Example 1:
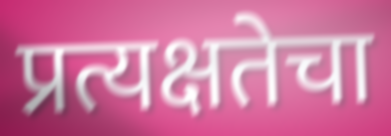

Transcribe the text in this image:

प्रत्यक्षतेचा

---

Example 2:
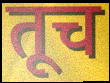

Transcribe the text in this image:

तूच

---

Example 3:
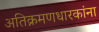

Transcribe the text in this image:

अतिक्रमणधारकांना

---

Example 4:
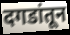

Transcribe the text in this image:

दगडांतून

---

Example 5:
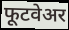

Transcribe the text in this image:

फूटवेअर